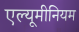
एल्यूमीनियम